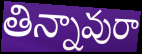
తిన్నావురా